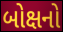
બોક્ષનો